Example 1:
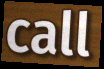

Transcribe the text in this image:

call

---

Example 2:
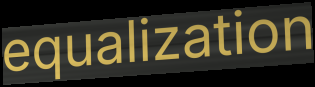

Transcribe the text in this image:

equalization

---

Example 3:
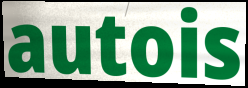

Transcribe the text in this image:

autois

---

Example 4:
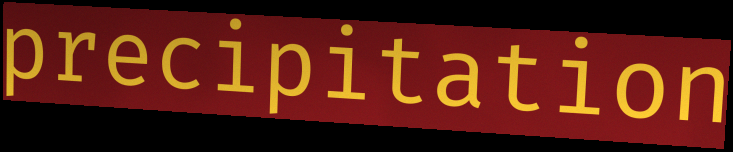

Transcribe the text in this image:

precipitation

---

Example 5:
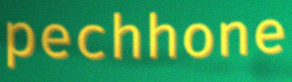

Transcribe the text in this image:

pechhone